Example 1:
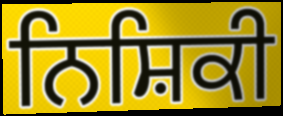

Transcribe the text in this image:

ਨਿਸ਼ਿਕੀ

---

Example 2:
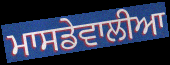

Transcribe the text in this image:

ਮਾਸਡੇਵਾਲੀਆ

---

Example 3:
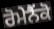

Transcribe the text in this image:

ਰੋਮੇਨੈਂਕੋ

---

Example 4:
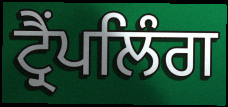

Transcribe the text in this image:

ਟ੍ਰੈਂਪਲਿੰਗ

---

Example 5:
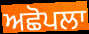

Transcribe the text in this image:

ਅਛੋਪਲਾ